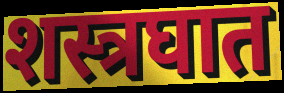
शस्त्रघात